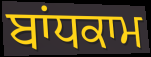
ਬਾਂਧਕਾਮ